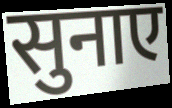
सुनाए